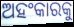
ଅହଂକାରକୁ